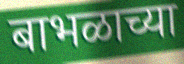
बाभळाच्या